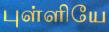
புள்ளியே